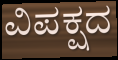
ವಿಪಕ್ಷದ